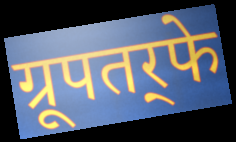
ग्रूपतर्फे